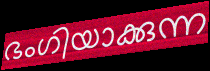
ഭംഗിയാക്കുന്ന